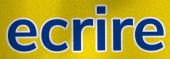
ecrire